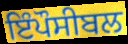
ਇੰਪੌਸੀਬਲ